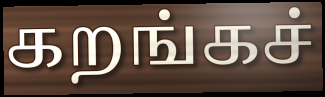
கறங்கச்